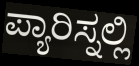
ಪ್ಯಾರಿಸ್ನಲ್ಲಿ